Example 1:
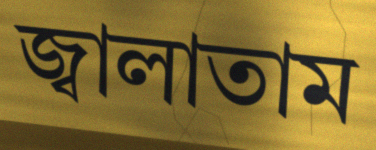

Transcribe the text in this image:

জ্বালাতাম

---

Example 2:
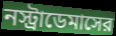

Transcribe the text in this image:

নস্ট্রাডেমাসের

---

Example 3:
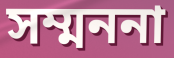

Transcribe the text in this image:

সম্মননা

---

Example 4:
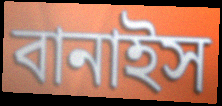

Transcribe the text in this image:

বানাইস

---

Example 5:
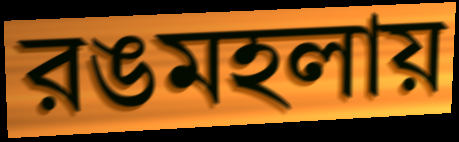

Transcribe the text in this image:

রঙমহলায়